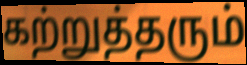
கற்றுத்தரும்